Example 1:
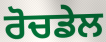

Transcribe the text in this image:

ਰੋਚਡੇਲ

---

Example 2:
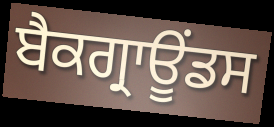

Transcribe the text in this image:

ਬੈਕਗ੍ਰਾਊਂਡਸ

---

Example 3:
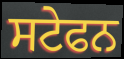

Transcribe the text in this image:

ਸਟੇਫਨ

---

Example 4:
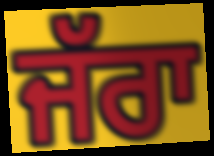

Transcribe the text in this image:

ਜੱਰਾ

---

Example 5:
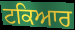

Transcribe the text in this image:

ਟਕਿਆਰ